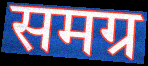
समग्र